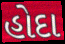
હોદા